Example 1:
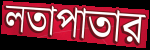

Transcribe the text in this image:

লতাপাতার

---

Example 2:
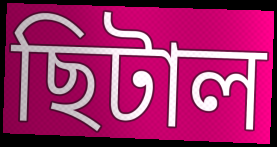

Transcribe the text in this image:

ছিটাল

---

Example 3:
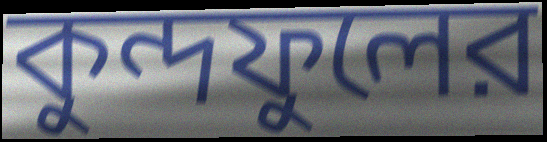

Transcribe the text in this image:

কুন্দফুলের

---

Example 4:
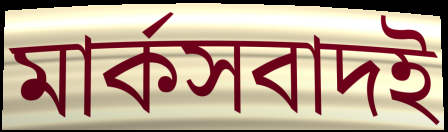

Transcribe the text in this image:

মার্কসবাদই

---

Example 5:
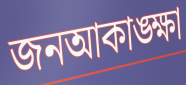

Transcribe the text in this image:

জনআকাঙ্ক্ষা